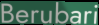
Berubari